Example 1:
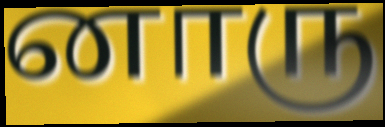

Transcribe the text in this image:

னாரு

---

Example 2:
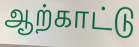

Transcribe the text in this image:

ஆற்காட்டு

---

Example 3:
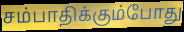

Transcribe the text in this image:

சம்பாதிக்கும்போது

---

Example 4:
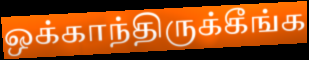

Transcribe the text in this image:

ஒக்காந்திருக்கீங்க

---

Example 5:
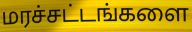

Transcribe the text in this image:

மரச்சட்டங்களை